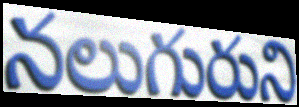
నలుగురుని